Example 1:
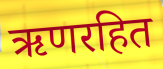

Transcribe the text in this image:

ऋणरहित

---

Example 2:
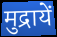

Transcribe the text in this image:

मुद्रायें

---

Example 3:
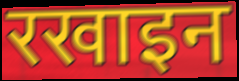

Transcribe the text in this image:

रखाइन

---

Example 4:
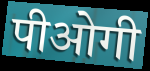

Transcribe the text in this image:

पीओगी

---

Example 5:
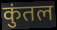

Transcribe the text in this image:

कुंतल